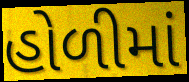
હોળીમાં